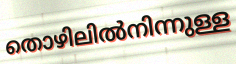
തൊഴിലിൽനിന്നുള്ള